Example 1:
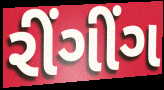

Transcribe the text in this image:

રીંગીંગ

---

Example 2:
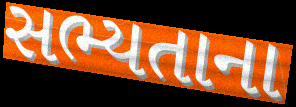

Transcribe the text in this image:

સભ્યતાના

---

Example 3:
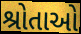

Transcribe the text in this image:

શ્રોતાઓ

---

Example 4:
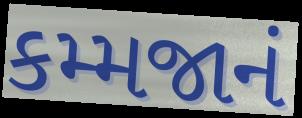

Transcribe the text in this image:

કમ્મજાનં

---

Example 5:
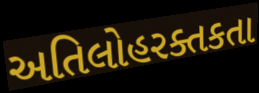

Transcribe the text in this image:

અતિલોહરક્તકતા